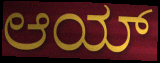
ಆಯ್